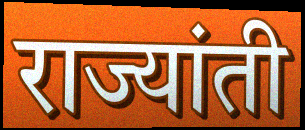
राज्यांती